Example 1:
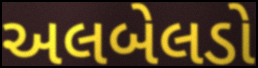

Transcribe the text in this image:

અલબેલડો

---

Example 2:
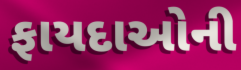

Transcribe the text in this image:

ફાયદાઓની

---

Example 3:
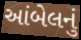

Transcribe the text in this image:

આંબેલનું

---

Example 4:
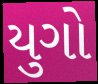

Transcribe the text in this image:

યુગો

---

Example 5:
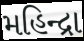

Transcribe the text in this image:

મહિન્દ્રા